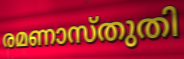
രമണാസ്തുതി